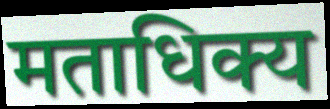
मताधिक्य